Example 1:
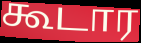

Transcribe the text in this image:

கூடார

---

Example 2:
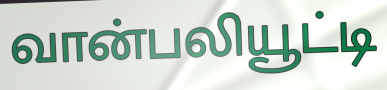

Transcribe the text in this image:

வான்பலியூட்டி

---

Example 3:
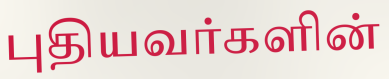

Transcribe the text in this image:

புதியவர்களின்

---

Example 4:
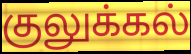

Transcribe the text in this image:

குலுக்கல்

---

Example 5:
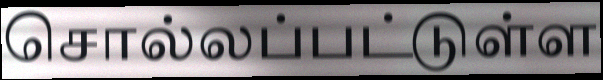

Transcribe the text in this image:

சொல்லப்பட்டுள்ள